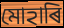
মোহাৰি